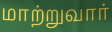
மாற்றுவார்